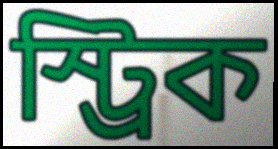
স্ট্রিক